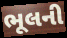
ભૂલની